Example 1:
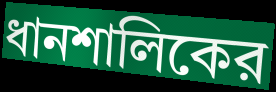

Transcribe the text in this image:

ধানশালিকের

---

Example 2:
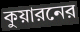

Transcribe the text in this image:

কুয়ারনের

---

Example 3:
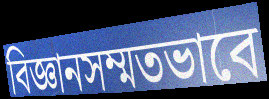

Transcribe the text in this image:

বিজ্ঞানসম্মতভাবে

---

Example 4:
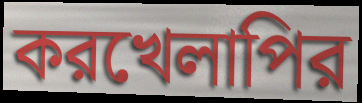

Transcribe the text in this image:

করখেলাপির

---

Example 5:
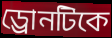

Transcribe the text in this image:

ড্রোনটিকে